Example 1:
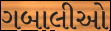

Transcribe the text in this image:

ગબાલીઓ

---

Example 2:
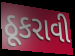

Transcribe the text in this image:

ઠૂકરાવી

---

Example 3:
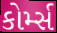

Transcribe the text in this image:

કોર્મ્સ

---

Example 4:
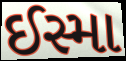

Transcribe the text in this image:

ઈસ્મા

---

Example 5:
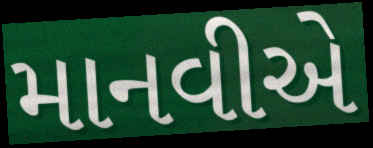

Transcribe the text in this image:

માનવીએ